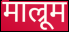
माल्रूम